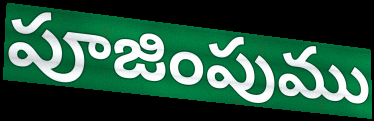
పూజింపుము